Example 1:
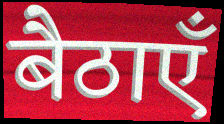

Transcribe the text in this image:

बैठाएँ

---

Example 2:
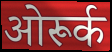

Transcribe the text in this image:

ओरूर्क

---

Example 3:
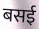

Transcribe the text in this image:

बसई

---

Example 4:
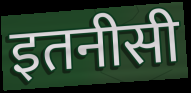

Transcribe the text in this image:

इतनीसी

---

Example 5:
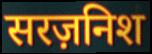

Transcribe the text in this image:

सरज़निश